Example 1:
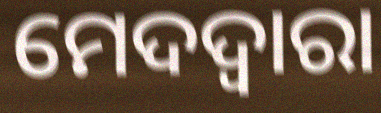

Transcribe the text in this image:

ମେଦଦ୍ଵାରା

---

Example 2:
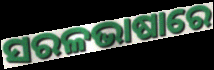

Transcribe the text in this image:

ସରଳଭାଷାରେ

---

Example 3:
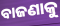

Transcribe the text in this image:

ବାଜଣାକୁ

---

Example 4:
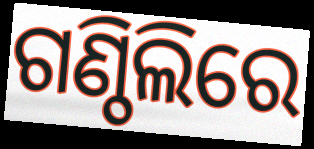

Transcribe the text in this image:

ଗଣ୍ଠିଲିରେ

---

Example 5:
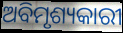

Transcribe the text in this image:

ଅବିମୃଶ୍ୟକାରୀ